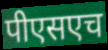
पीएसएच